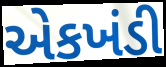
એકખંડી